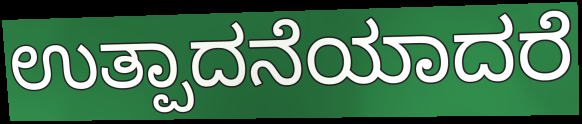
ಉತ್ಪಾದನೆಯಾದರೆ